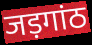
जड़गांठ